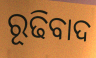
ରୂଢିବାଦ